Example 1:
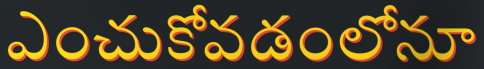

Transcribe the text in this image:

ఎంచుకోవడంలోనూ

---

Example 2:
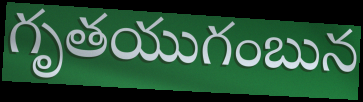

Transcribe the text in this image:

గృతయుగంబున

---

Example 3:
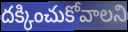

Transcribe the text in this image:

దక్కించుకోవాలని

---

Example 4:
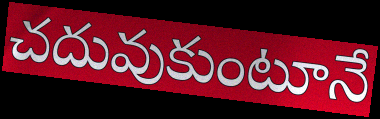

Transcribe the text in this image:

చదువుకుంటూనే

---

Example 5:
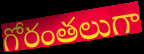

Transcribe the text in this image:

గోరంతలుగా